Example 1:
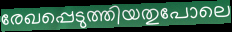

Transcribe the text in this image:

രേഖപ്പെടുത്തിയതുപോലെ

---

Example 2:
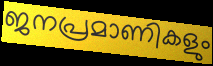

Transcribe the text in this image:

ജനപ്രമാണികളും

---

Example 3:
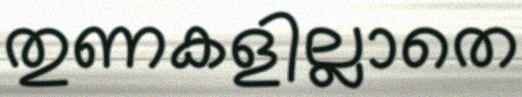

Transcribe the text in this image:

തുണകളില്ലാതെ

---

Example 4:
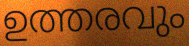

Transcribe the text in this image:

ഉത്തരവും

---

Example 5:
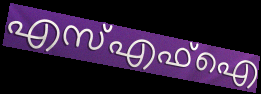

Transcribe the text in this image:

എസ്എഫ്ഐ